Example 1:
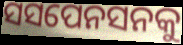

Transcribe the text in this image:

ସସପେନସନକୁ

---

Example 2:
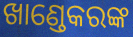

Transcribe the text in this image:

ଖାଣ୍ଡେକରଙ୍କ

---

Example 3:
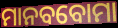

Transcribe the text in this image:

ମାନବବୋମା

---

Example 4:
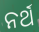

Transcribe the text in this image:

ନର୍ଥ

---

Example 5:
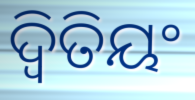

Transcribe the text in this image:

ଦ୍ୱିତିୟଂ